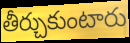
తీర్చుకుంటారు